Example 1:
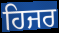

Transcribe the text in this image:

ਹਿਜਰ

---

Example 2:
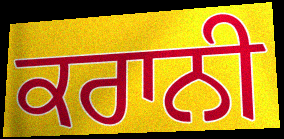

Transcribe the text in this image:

ਕਰਾਨੀ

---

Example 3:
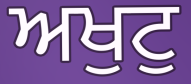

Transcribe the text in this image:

ਅਖੁਟੁ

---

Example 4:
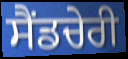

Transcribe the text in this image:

ਸੈਂਡਚੇਰੀ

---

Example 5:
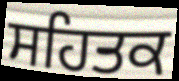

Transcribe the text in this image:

ਸਹਿਤਕ